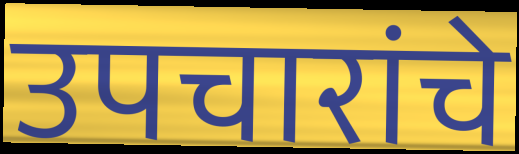
उपचारांचे